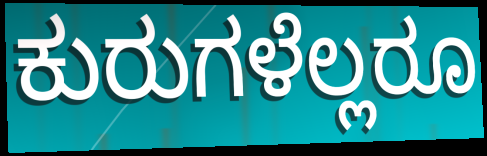
ಕುರುಗಳೆಲ್ಲರೂ